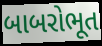
બાબરોભૂત